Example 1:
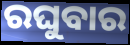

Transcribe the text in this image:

ରଘୁବାର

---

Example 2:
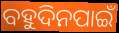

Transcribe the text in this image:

ବହୁଦିନପାଇଁ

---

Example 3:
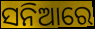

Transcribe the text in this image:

ସନିଆରେ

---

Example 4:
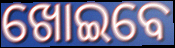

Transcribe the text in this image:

ଖୋଇବେ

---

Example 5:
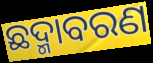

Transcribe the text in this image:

ଛଦ୍ମାବରଣ